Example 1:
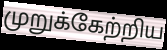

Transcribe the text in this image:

முறுக்கேற்றிய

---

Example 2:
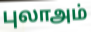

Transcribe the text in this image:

புலாஅம்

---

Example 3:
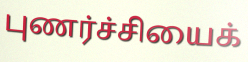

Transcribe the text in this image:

புணர்ச்சியைக்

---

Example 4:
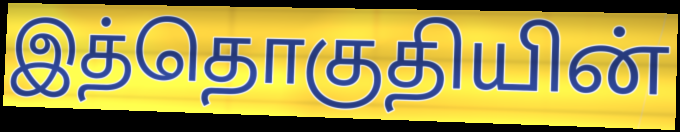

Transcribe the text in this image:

இத்தொகுதியின்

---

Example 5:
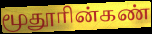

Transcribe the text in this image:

மூதூரின்கண்